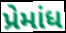
પ્રેમાંધ